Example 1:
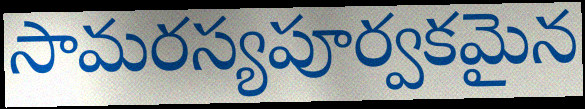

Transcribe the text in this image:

సామరస్యపూర్వకమైన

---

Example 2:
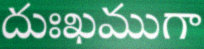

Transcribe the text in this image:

దుఃఖముగా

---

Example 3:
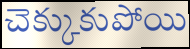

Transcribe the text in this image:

చెక్కుకుపోయి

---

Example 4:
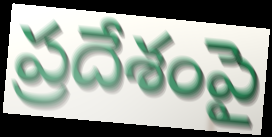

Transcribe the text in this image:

ప్రదేశంపై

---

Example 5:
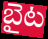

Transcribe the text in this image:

బైట